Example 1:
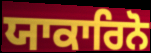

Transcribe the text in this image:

ਯਾਕਾਰਿਨੋ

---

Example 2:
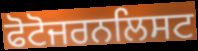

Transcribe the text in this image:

ਫੋਟੋਜਰਨਲਿਸਟ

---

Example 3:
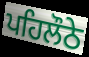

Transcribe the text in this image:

ਪਹਿਲੌਠੇ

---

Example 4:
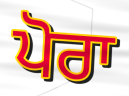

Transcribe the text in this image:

ਪੋਰਾ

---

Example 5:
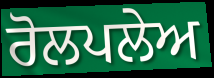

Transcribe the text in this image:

ਰੋਲਪਲੇਅ